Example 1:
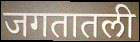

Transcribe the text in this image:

जगतातली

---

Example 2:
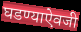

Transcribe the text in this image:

घडण्याऐवजी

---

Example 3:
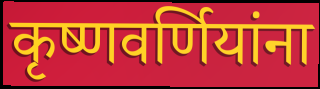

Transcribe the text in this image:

कृष्णवर्णियांना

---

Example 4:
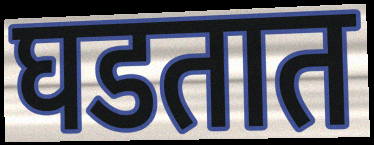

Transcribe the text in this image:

घडतात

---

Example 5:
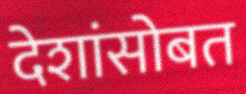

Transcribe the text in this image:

देशांसोबत